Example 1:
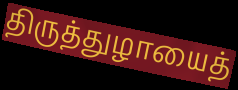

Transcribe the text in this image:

திருத்துழாயைத்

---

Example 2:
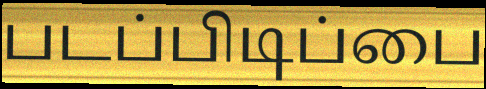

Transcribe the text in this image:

படப்பிடிப்பை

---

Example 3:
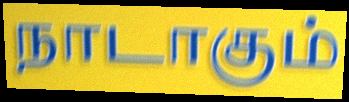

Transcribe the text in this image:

நாடாகும்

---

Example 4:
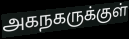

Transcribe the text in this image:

அகநகருக்குள்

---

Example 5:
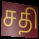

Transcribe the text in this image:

சதி